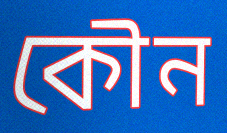
কৌন